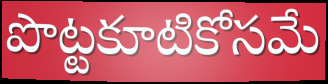
పొట్టకూటికోసమే